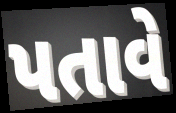
પતાવે